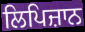
ਲਿਪਿਜ਼ਾਨ